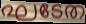
ഘടേത